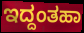
ಇದ್ದಂತಹಾ